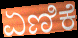
ಏಣಿಕೆ